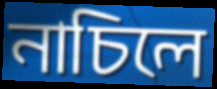
নাচিলে